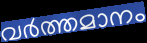
വർത്തമാനം